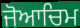
ਜੋਆਚਿਮ